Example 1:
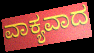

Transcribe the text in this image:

ವಾಕ್ಯವಾದ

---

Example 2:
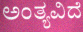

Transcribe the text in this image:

ಅಂತ್ಯವಿದೆ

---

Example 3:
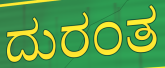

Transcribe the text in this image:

ದುರಂತ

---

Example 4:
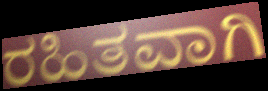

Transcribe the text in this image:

ರಹಿತವಾಗಿ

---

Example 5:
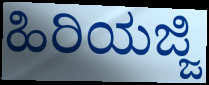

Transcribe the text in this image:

ಹಿರಿಯಜ್ಜಿ